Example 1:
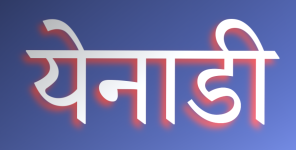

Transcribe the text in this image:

येनाडी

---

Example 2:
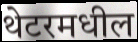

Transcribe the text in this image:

थेटरमधील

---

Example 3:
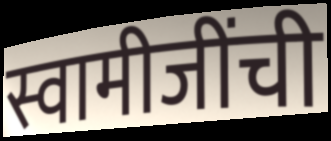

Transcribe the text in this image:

स्वामीजींची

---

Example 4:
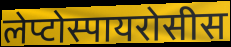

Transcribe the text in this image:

लेप्टोस्पायरोसीस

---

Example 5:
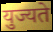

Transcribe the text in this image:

युज्यते